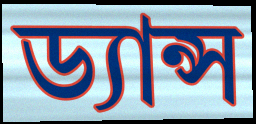
ড্যান্স